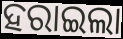
ହରାଇଲା